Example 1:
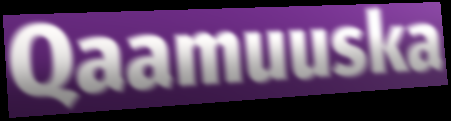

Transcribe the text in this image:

Qaamuuska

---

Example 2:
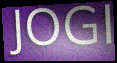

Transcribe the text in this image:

JOGI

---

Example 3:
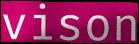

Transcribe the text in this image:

vison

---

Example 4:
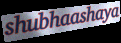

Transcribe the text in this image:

shubhaashaya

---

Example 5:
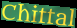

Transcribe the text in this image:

Chittal